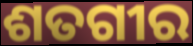
ଶତଗୀର